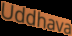
Uddhava